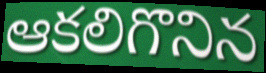
ఆకలిగొనిన